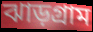
ঝাড়গ্রাম